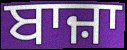
ਬਾਜ਼ਾ